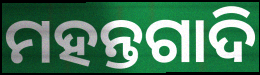
ମହନ୍ତଗାଦି